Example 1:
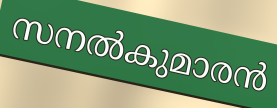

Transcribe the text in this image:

സനൽകുമാരൻ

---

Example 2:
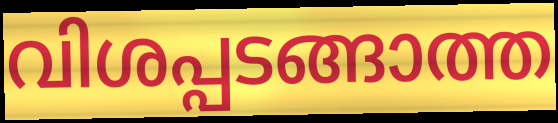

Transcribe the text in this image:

വിശപ്പടങ്ങാത്ത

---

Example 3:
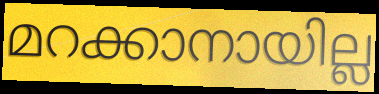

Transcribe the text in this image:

മറക്കാനായില്ല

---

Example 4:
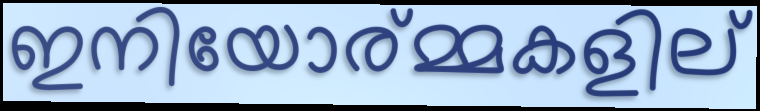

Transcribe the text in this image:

ഇനിയോര്മ്മകളില്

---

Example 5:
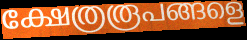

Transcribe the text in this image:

ക്ഷേത്രരൂപങ്ങളെ